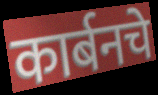
कार्बनचे